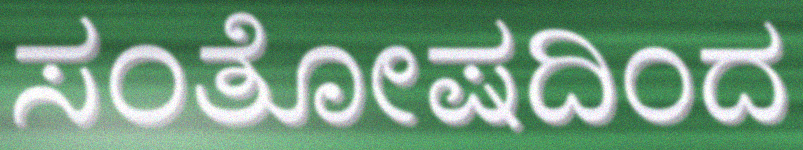
ಸಂತೋಷದಿಂದ